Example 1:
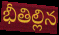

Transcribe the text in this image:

భీతిల్లిన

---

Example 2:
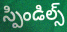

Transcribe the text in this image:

స్పిండిల్స్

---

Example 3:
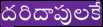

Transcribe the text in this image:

దరిదాపులకే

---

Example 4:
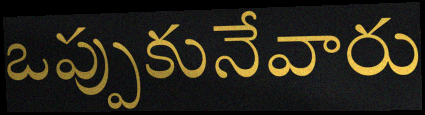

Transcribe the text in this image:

ఒప్పుకునేవారు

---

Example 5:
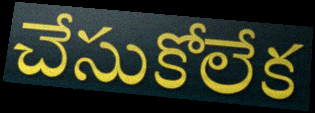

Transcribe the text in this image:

చేసుకోలేక